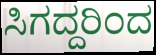
ಸಿಗದ್ದರಿಂದ